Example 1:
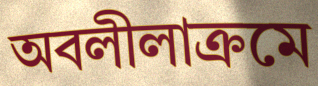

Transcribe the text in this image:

অবলীলাক্রমে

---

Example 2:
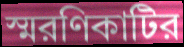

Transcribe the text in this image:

স্মরণিকাটির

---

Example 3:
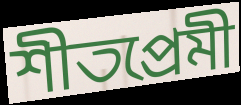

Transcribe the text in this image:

শীতপ্রেমী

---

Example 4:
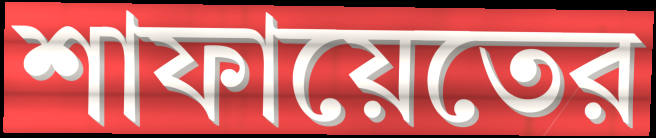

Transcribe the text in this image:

শাফায়েতের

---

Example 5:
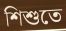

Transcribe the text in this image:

শিশুতে